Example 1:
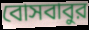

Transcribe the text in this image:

বোসবাবুর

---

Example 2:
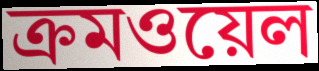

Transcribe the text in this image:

ক্রমওয়েল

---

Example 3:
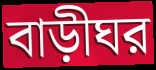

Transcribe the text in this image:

বাড়ীঘর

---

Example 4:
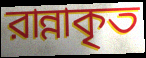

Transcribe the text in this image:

রান্নাকৃত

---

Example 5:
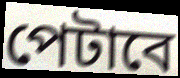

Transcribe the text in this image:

পেটাবে